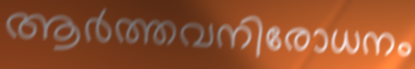
ആർത്തവനിരോധനം